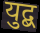
युद्ब